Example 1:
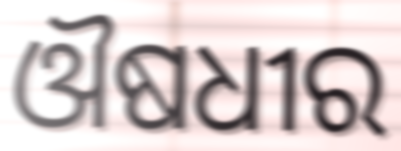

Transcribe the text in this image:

ଔଷଧୀର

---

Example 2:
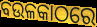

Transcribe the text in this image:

ବଉଳକାଠରେ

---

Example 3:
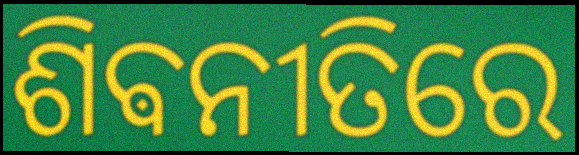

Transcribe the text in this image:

ଶିଵନୀତିରେ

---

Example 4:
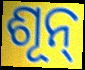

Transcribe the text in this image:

ଶୂନ୍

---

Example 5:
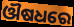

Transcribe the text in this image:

ଔଷଧରେ